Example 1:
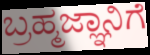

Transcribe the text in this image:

ಬ್ರಹ್ಮಜ್ಞಾನಿಗೆ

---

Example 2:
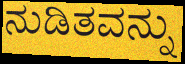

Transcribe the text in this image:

ನುಡಿತವನ್ನು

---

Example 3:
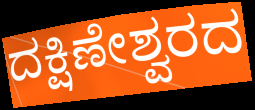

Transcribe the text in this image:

ದಕ್ಷಿಣೇಶ್ವರದ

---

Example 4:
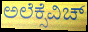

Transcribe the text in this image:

ಅಲೆಕ್ಸೆವಿಚ್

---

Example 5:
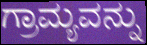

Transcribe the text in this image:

ಗ್ರಾಮ್ಯವನ್ನು